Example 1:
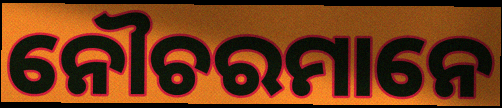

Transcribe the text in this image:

ନୌଚରମାନେ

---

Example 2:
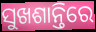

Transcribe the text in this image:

ସୁଖଶାନ୍ତିରେ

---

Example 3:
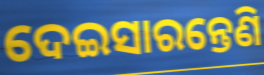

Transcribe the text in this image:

ଦେଇସାରନ୍ତେଣି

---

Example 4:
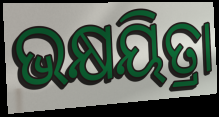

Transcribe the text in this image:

ଭକ୍ଷୟିତ୍ରା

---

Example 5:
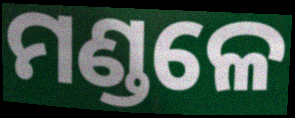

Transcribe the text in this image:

ମଣ୍ଡଳେ